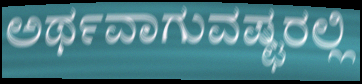
ಅರ್ಥವಾಗುವಷ್ಟರಲ್ಲಿ